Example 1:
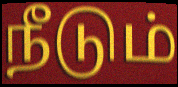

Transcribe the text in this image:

நீடும்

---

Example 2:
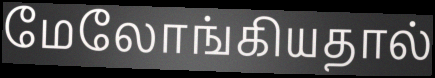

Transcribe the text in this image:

மேலோங்கியதால்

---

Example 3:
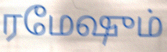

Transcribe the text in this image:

ரமேஷும்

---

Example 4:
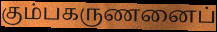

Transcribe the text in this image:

கும்பகருணனைப்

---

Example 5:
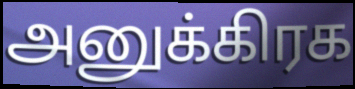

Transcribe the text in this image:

அனுக்கிரக